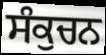
ਸੰਕੁਚਨ